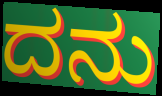
ದನು